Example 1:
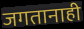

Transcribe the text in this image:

जगतानाही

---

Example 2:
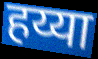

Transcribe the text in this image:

हय्या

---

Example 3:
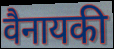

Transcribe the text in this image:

वैनायकी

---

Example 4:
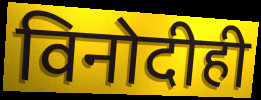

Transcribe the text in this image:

विनोदीही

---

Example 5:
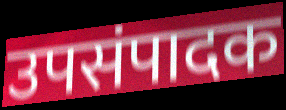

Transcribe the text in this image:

उपसंपादक